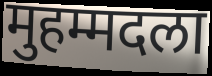
मुहम्मदला